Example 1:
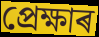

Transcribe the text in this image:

প্ৰেক্ষাৰ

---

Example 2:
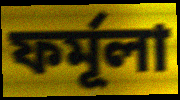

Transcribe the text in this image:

ফৰ্মূলা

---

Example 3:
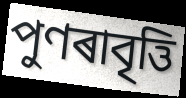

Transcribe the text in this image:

পুণৰাবৃত্তি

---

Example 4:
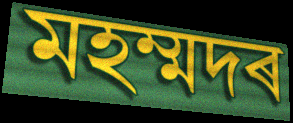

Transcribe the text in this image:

মহম্মদৰ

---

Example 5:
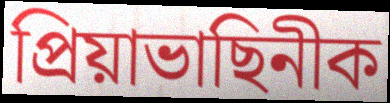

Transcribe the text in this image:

প্ৰিয়াভাছিনীক